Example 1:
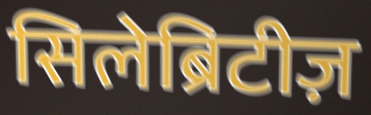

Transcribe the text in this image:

सिलेब्रिटीज़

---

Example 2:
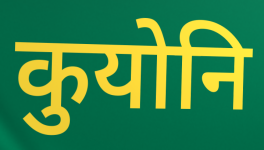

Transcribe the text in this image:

कुयोनि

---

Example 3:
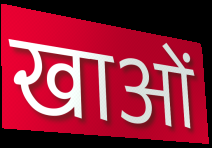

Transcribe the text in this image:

खाओं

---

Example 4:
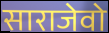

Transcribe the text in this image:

साराजेवो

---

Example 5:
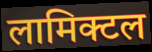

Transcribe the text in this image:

लामिक्टल